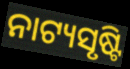
ନାଟ୍ୟସୃଷ୍ଟି